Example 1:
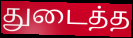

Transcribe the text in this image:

துடைத்த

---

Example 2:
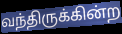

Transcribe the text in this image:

வந்திருக்கின்ற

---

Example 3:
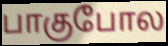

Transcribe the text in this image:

பாகுபோல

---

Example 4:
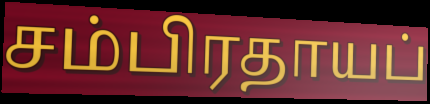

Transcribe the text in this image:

சம்பிரதாயப்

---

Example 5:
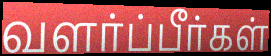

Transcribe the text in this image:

வளர்ப்பீர்கள்